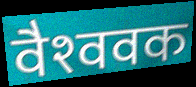
वैश्ववक